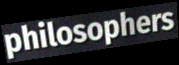
philosophers